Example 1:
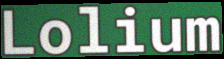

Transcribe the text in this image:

Lolium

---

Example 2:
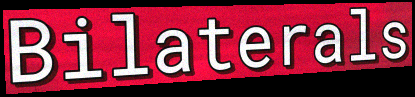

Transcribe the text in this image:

Bilaterals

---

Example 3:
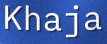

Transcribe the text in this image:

Khaja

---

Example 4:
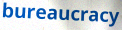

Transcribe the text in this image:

bureaucracy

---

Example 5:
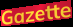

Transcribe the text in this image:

Gazette